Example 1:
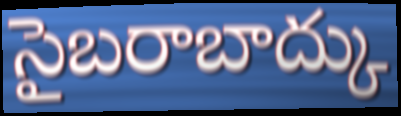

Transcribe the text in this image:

సైబరాబాద్కు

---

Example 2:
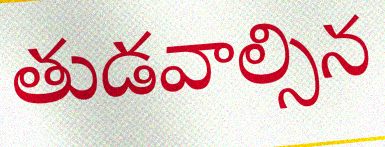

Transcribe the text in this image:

తుడవాల్సిన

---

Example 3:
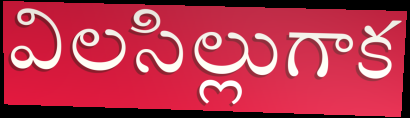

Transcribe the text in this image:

విలసిల్లుగాక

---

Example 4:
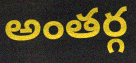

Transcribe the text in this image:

అంతర్గ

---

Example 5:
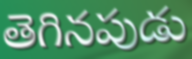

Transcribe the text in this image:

తెగినపుడు